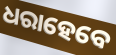
ଧରାହେବେ